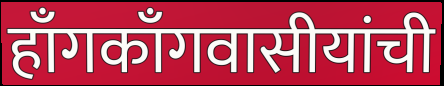
हाँगकाँगवासीयांची